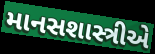
માનસશાસ્ત્રીએ